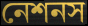
নেশনস